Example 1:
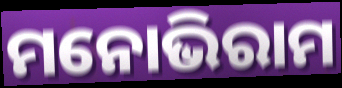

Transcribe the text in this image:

ମନୋଭିରାମ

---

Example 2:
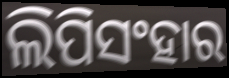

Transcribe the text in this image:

ଲିପିସଂହାର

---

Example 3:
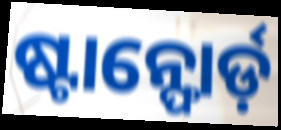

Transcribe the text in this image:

ଷ୍ଟାନ୍ଫୋର୍ଡ଼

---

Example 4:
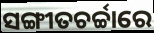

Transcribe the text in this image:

ସଙ୍ଗୀତଚର୍ଚ୍ଚାରେ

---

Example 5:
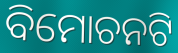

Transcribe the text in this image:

ବିମୋଚନଟି